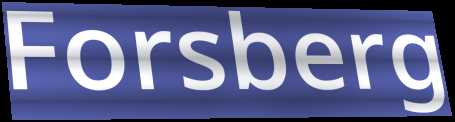
Forsberg